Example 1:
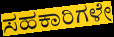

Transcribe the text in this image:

ಸಹಕಾರಿಗಳೇ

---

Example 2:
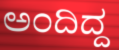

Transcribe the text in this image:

ಅಂದಿದ್ದ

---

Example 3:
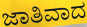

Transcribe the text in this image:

ಜಾತಿವಾದ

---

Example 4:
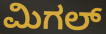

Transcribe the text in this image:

ಮಿಗಲ್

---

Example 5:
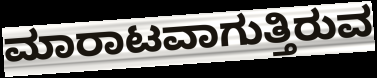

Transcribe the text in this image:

ಮಾರಾಟವಾಗುತ್ತಿರುವ